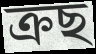
ক্ৰছ